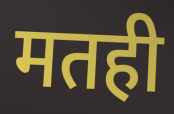
मतही